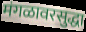
मंगळावरसुद्धा